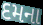
દમના